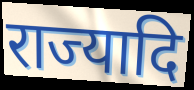
राज्यादि